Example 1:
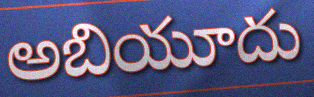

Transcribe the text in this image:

అబియూదు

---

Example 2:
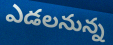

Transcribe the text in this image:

ఎడలనున్న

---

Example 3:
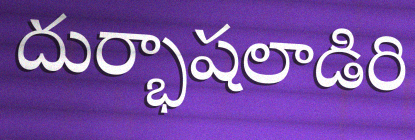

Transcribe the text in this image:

దుర్భాషలాడిరి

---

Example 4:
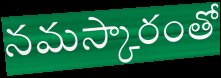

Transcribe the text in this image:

నమస్కారంతో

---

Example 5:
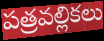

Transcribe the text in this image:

పత్రవల్లికలు